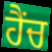
ਹੈਂਚ